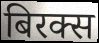
बिरक्स